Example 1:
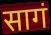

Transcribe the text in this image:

सागं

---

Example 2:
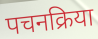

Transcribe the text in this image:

पचनक्रिया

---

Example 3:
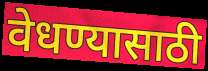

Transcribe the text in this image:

वेधण्यासाठी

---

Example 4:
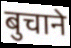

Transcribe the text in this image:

बुचाने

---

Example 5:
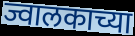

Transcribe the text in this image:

ज्वालकाच्या